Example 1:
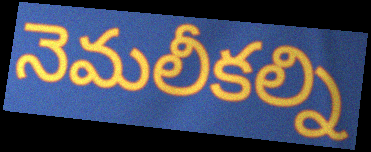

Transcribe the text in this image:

నెమలీకల్ని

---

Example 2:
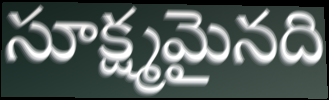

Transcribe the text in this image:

సూక్ష్మమైనది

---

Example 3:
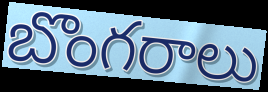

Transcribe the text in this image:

బొంగరాలు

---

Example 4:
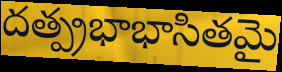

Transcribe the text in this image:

దత్ప్రభాభాసితమై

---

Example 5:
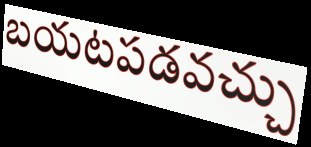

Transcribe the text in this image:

బయటపడవచ్చు